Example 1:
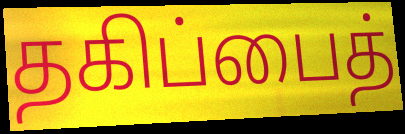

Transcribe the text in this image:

தகிப்பைத்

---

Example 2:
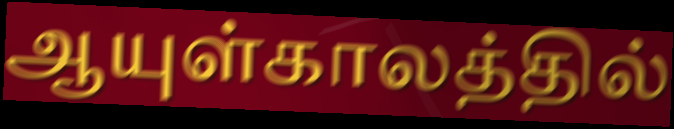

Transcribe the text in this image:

ஆயுள்காலத்தில்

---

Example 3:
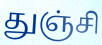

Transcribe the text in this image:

துஞ்சி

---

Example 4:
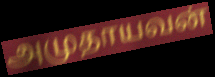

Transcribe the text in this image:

அமுதாயவன்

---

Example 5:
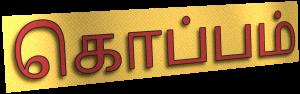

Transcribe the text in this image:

கொப்பம்